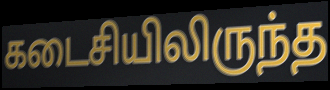
கடைசியிலிருந்த